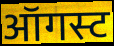
ऑगस्ट